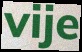
vije